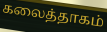
கலைத்தாகம்